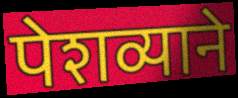
पेशव्याने